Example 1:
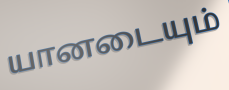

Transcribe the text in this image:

யானடையும்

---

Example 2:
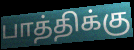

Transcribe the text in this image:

பாத்திக்கு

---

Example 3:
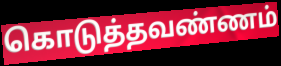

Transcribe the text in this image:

கொடுத்தவண்ணம்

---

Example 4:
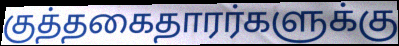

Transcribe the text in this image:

குத்தகைதாரர்களுக்கு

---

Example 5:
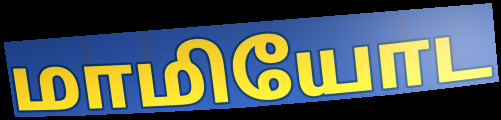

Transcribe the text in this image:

மாமியோட